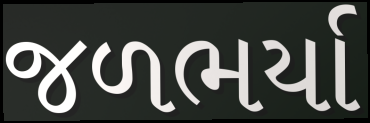
જળભર્યા